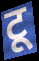
टू